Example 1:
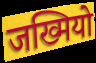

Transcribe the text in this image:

जख्मियो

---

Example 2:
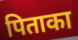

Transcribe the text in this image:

पिताका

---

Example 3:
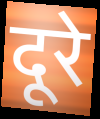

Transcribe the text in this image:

दूरे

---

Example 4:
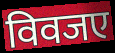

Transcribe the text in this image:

विवजए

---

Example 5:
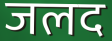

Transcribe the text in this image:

जलद